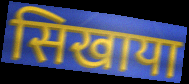
सिखाया